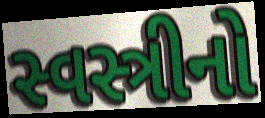
સ્વસ્ત્રીનો